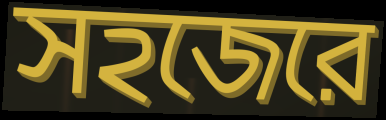
সহজেরে